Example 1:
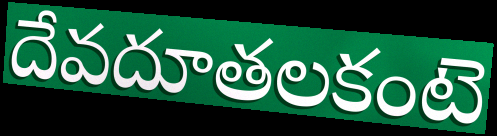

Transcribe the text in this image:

దేవదూతలకంటె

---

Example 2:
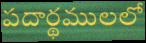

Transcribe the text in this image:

పదార్థములలో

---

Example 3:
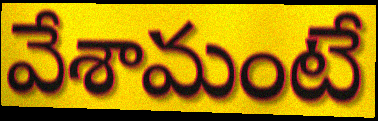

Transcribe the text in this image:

వేశామంటే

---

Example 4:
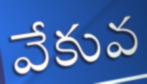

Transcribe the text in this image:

వేకువ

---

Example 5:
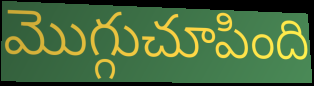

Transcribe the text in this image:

మొగ్గుచూపింది